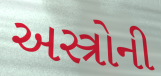
અસ્ત્રોની